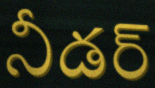
నీడర్